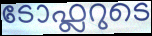
ടോഫ്ലറുടെ